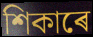
শিকাৰে